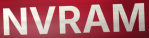
NVRAM